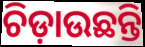
ଚିଡ଼ାଉଛନ୍ତି